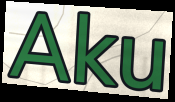
Aku